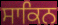
ਸਾਕਿਨ